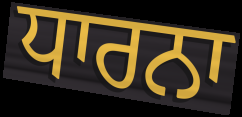
ਧਾਰਨਾ